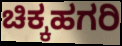
ಚಿಕ್ಕಹಗರಿ